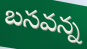
బసవన్న